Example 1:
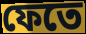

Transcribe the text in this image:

ফেতে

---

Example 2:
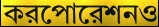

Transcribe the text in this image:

করপোরেশনও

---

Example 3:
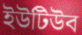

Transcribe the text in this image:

ইউটিউব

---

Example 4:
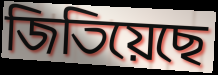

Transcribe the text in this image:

জিতিয়েছে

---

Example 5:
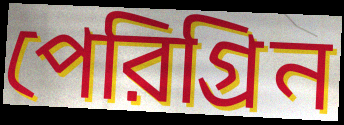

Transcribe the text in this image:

পেরিগ্রিন